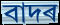
বাদৰ